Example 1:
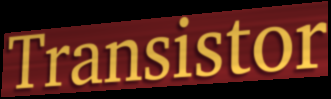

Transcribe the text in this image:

Transistor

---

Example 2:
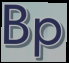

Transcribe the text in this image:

Bp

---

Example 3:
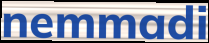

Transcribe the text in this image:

nemmadi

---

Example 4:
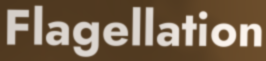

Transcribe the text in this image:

Flagellation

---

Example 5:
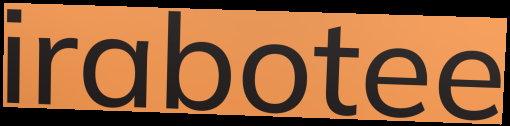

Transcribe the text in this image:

irabotee